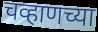
चव्हाणच्या